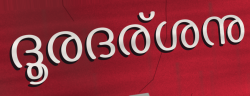
ദൂരദര്ശനു